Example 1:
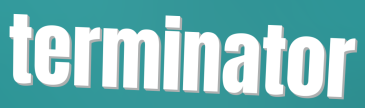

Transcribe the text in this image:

terminator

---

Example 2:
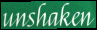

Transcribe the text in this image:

unshaken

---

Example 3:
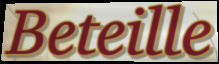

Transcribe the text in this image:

Beteille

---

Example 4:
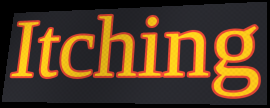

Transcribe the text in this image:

Itching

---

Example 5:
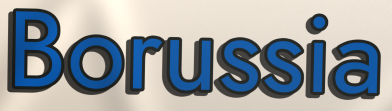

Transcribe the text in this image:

Borussia